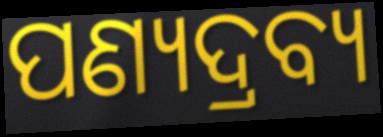
ପଣ୍ୟଦ୍ରବ୍ୟ